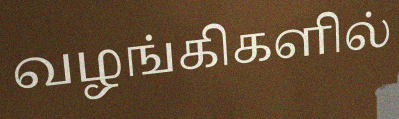
வழங்கிகளில்